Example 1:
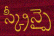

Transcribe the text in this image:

స్క్రీన్పై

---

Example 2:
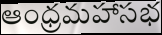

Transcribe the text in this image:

ఆంధ్రమహాసభ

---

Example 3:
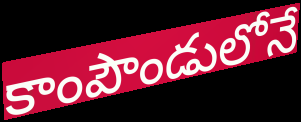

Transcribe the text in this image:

కాంపౌండులోనే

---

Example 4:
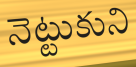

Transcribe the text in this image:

నెట్టుకుని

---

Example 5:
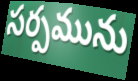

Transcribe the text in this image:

సర్పమును